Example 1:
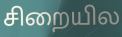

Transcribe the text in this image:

சிறையில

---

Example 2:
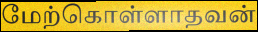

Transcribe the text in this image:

மேற்கொள்ளாதவன்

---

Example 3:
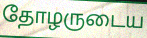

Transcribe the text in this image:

தோழருடைய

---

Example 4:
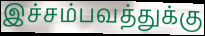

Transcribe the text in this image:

இச்சம்பவத்துக்கு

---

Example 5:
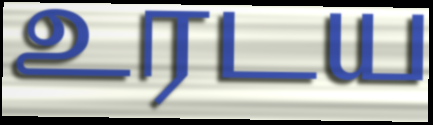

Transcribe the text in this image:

உரடய